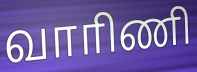
வாரிணி